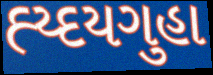
હ્ય્દયગુહા